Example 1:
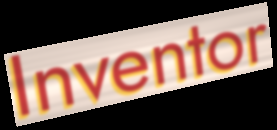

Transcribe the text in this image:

Inventor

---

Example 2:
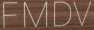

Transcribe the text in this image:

FMDV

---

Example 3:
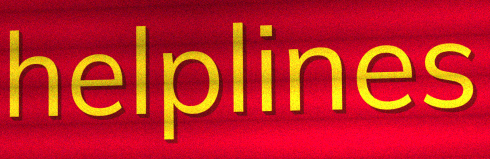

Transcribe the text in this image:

helplines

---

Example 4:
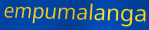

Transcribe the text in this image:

empumalanga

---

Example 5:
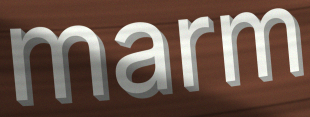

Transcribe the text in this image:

marm